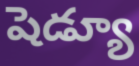
షెడ్యూ